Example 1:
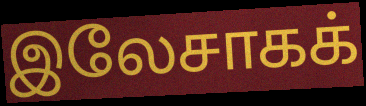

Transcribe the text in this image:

இலேசாகக்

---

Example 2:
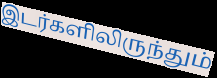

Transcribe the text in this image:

இடர்களிலிருந்தும்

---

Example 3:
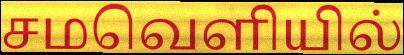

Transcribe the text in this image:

சமவெளியில்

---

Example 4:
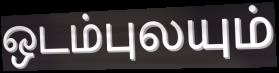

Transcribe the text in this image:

ஒடம்புலயும்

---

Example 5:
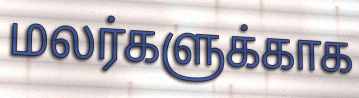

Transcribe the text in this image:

மலர்களுக்காக